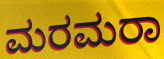
ಮರಮರಾ